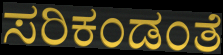
ಸರಿಕಂಡಂತೆ